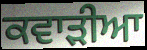
ਕਵਾੜੀਆ